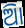
ଆି